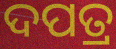
ଦପତ୍ର